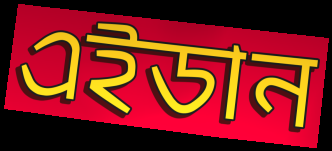
এইডান